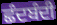
ਛੰਦਬੰਦੀ